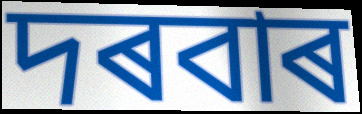
দৰবাৰ